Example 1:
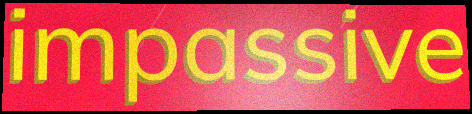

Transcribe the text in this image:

impassive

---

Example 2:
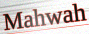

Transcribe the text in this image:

Mahwah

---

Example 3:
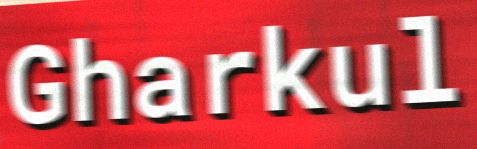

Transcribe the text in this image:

Gharkul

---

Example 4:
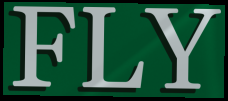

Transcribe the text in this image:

FLY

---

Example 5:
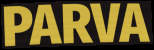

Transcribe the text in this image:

PARVA